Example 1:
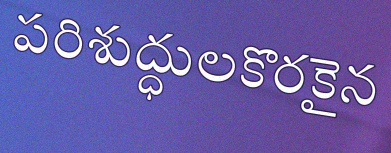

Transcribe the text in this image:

పరిశుద్ధులకొరకైన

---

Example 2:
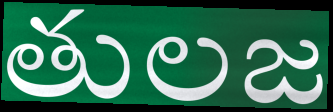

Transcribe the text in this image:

తులజ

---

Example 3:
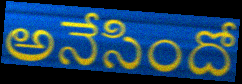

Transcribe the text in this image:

అనేసిందో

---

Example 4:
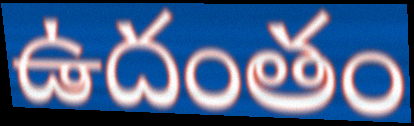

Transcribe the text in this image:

ఉదంతం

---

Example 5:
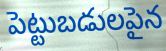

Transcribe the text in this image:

పెట్టుబడులపైన